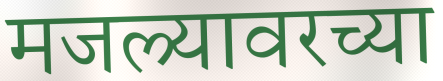
मजल्यावरच्या